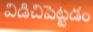
విడిచిపెట్టడం